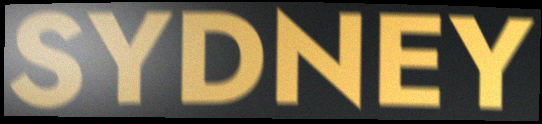
SYDNEY